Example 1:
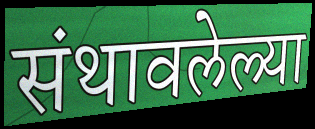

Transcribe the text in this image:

संथावलेल्या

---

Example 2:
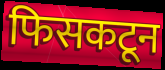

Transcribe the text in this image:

फिसकटून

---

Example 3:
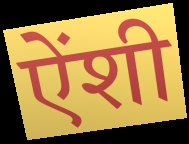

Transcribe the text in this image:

ऐंशी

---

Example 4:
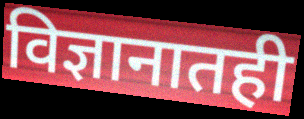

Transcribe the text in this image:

विज्ञानातही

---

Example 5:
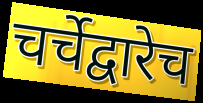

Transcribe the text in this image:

चर्चेद्वारेच